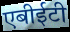
एबीईटी